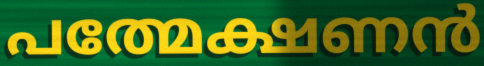
പത്മേക്ഷണൻ